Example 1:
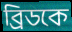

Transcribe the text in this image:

ব্রিডকে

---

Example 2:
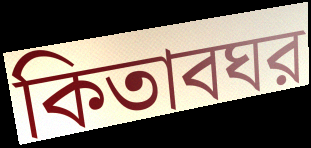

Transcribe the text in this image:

কিতাবঘর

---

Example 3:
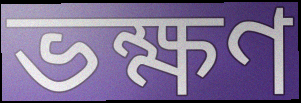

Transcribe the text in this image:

ভক্ষণ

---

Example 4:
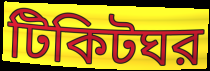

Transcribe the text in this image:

টিকিটঘর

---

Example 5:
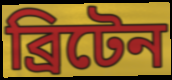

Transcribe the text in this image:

ব্রিটেন